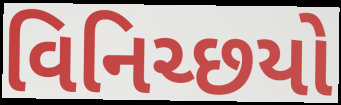
વિનિચ્છયો